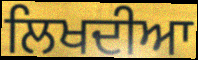
ਲਿਖਦੀਆ